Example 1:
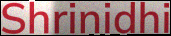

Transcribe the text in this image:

Shrinidhi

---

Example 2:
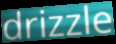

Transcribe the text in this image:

drizzle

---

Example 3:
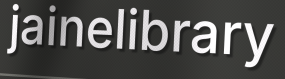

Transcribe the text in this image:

jainelibrary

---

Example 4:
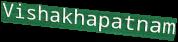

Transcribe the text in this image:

Vishakhapatnam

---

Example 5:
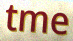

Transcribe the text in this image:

tme